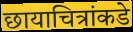
छायाचित्रांकडे